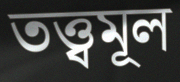
তত্ত্বমূল